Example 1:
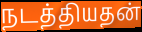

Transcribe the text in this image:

நடத்தியதன்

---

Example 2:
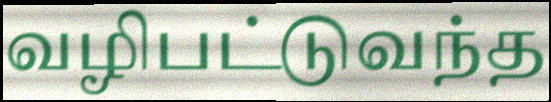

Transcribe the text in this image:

வழிபட்டுவந்த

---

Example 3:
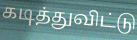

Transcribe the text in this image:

கடித்துவிட்டு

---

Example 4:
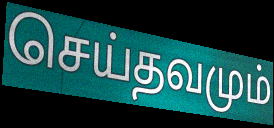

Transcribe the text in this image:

செய்தவமும்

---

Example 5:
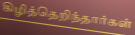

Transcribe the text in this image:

கிழித்தெறிந்தார்கள்